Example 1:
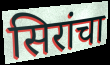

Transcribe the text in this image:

सिरांचा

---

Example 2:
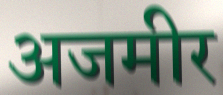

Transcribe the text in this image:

अजमीर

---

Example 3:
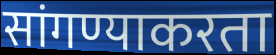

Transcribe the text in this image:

सांगण्याकरता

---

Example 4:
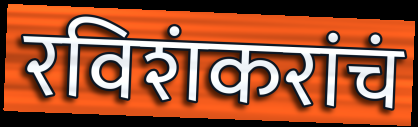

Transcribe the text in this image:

रविशंकरांचं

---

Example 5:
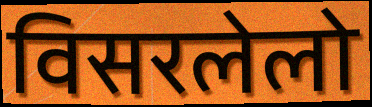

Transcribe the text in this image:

विसरलेलो